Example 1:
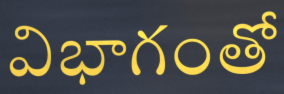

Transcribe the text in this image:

విభాగంతో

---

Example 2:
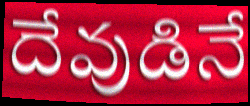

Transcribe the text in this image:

దేవుడినే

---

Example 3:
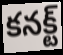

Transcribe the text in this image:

కనక్ట్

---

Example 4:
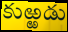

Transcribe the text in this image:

కుఱ్ఱడు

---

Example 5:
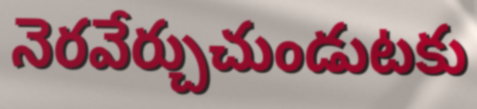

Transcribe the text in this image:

నెరవేర్చుచుండుటకు